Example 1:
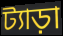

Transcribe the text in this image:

ট্যাড়া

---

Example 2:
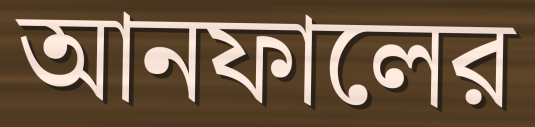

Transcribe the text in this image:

আনফালের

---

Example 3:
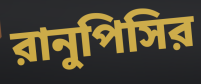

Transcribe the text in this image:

রানুপিসির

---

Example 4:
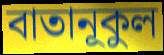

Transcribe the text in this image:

বাতানূকুল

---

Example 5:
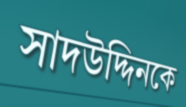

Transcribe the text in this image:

সাদউদ্দিনকে